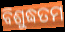
ବିଶୁଦ୍ଧତମ